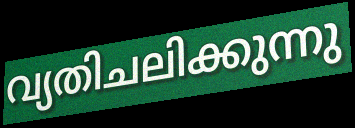
വ്യതിചലിക്കുന്നു